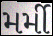
મર્મી